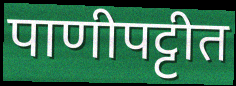
पाणीपट्टीत